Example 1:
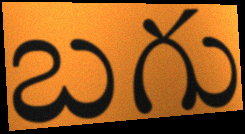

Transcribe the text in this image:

బగు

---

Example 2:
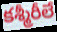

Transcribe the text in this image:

కశ్మీరీలే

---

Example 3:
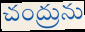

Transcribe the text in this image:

చంద్రును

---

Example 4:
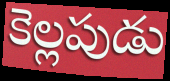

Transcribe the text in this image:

కెల్లపుడు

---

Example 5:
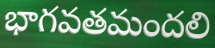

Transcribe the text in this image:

భాగవతమందలి